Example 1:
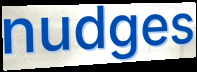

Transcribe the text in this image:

nudges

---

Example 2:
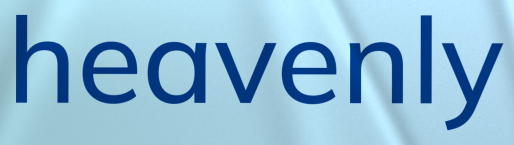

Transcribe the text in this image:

heavenly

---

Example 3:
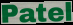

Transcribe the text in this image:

Patel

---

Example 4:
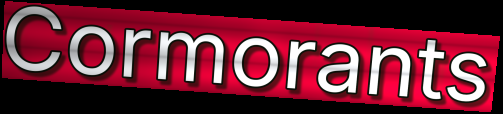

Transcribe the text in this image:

Cormorants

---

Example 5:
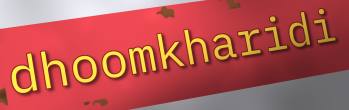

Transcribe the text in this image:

dhoomkharidi